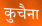
कुचैना